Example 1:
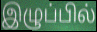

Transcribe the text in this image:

இழுப்பில்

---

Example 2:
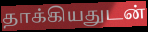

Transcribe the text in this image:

தாக்கியதுடன்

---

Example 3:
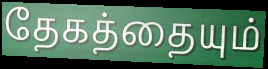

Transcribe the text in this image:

தேகத்தையும்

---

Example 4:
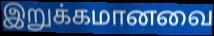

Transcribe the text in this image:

இறுக்கமானவை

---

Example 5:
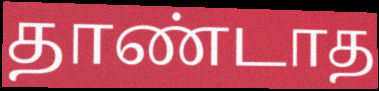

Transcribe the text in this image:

தாண்டாத